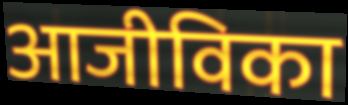
आजीविका